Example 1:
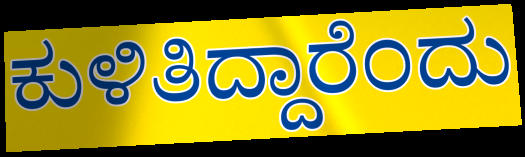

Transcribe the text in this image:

ಕುಳಿತಿದ್ದಾರೆಂದು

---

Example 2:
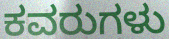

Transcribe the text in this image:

ಕವರುಗಳು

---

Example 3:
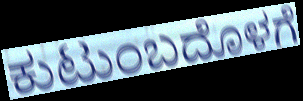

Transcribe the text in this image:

ಕುಟುಂಬದೊಳಗೆ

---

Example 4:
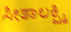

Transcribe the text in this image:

ಸೀತಾಲಕ್ಷ್ಮಿ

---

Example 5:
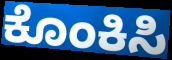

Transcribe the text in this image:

ಕೊಂಕಿಸಿ